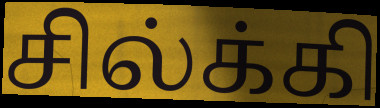
சில்க்கி